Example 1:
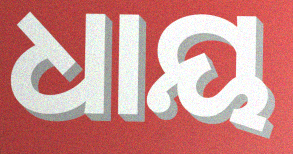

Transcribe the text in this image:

ଧାୟ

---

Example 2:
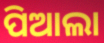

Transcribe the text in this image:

ପିଆଲା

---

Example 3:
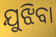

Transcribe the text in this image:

ଯୁଝିବା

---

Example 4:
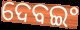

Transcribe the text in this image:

ଦେବଇଂ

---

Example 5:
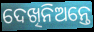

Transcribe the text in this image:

ଦେଖିନିଅନ୍ତେ